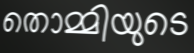
തൊമ്മിയുടെ